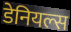
डेनियल्स